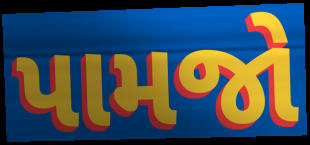
પામજો